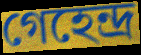
গেহেন্দ্র